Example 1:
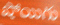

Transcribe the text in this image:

షోయిగు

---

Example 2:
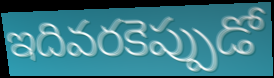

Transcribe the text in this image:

ఇదివరకెప్పుడో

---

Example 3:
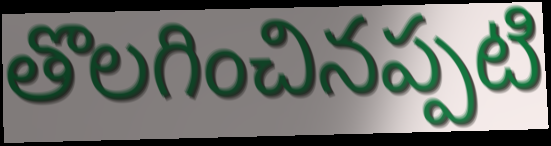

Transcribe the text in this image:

తొలగించినప్పటి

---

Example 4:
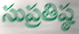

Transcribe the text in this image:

సుప్రతిష్ఠ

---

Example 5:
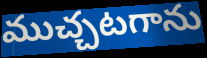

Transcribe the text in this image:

ముచ్చటగాను